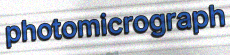
photomicrograph